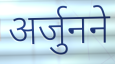
अर्जुनने